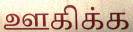
ஊகிக்க